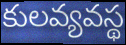
కులవ్యవస్థ